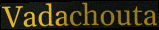
Vadachouta